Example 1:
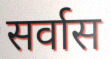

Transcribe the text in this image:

सर्वास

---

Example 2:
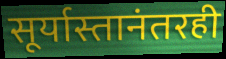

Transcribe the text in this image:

सूर्यास्तानंतरही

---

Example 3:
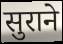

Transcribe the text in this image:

सुराने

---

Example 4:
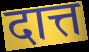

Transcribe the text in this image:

दात्त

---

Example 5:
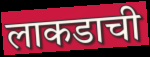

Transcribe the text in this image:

लाकडाची